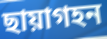
ছায়াগহন